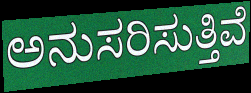
ಅನುಸರಿಸುತ್ತಿವೆ